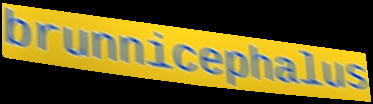
brunnicephalus